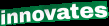
innovates